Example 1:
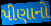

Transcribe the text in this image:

પીણાનો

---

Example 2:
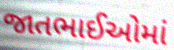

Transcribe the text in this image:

જાતભાઈઓમાં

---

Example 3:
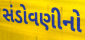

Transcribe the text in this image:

સંડોવણીનો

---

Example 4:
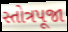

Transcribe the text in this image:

સ્તોત્રપૂજા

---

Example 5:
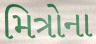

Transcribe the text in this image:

મિત્રોના